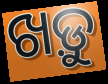
ଖଡ଼ୁ